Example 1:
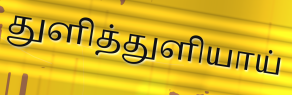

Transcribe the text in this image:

துளித்துளியாய்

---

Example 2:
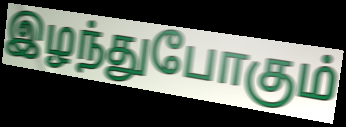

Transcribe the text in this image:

இழந்துபோகும்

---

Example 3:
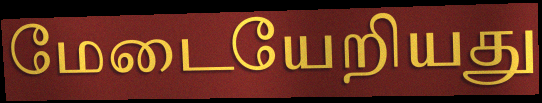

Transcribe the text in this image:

மேடையேறியது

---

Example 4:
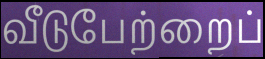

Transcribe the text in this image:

வீடுபேற்றைப்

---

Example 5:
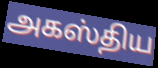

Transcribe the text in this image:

அகஸ்திய